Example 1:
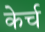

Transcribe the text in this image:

केर्च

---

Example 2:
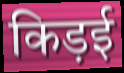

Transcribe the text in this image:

किड़ई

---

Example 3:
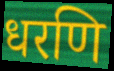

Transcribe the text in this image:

धरणि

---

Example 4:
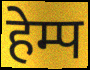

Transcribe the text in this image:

हेम्प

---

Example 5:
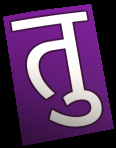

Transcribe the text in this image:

तु